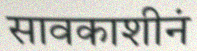
सावकाशीनं